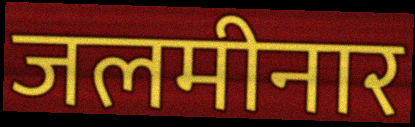
जलमीनार